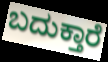
ಬದುಕ್ತಾರೆ